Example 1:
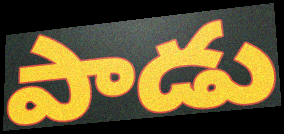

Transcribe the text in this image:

పాడు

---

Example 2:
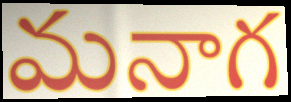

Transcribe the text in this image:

మనాగ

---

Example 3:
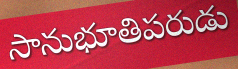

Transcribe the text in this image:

సానుభూతిపరుడు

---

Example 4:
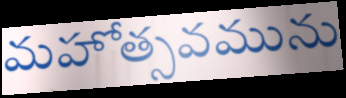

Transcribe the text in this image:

మహోత్సవమును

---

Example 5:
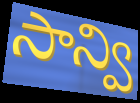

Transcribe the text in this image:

సాన్వి